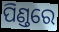
ପିଣ୍ଡରେ